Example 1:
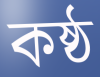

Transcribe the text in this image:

কষ্ঠ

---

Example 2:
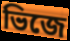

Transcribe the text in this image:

ভিজে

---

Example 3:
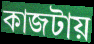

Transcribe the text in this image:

কাজটায়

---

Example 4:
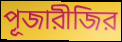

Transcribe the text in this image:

পূজারীজির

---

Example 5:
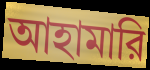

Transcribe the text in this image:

আহামারি